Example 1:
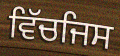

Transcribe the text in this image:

ਵਿੱਚਜਿਸ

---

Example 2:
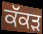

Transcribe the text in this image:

ਕੱਕਡ਼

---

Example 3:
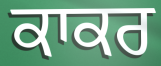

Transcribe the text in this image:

ਕਾਕਰ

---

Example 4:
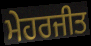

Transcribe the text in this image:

ਮੇਹਰਜੀਤ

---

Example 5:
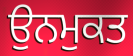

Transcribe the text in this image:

ਉਨਮੁਕਤ